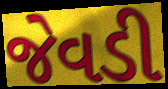
જેવડી